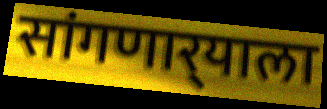
सांगणार्‍याला